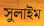
সুলাইম